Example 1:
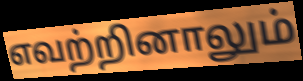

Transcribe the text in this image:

எவற்றினாலும்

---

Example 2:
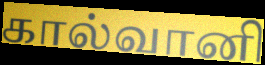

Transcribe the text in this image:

கால்வானி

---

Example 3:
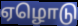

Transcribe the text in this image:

ஏழொடு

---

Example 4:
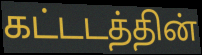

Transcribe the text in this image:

கட்டடத்தின்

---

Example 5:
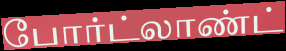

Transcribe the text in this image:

போர்ட்லாண்ட்